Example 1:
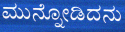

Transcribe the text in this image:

ಮುನ್ನೋಡಿದನು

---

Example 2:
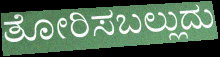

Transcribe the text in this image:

ತೋರಿಸಬಲ್ಲುದು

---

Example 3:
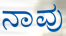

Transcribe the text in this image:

ನಾವು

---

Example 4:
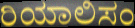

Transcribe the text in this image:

ರಿಯಾಲಿಸಂ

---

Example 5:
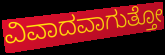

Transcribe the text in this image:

ವಿವಾದವಾಗುತ್ತೋ